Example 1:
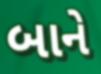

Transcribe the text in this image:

બાને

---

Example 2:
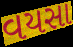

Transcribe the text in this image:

વયસા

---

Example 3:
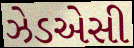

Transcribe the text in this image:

ઝેડએસી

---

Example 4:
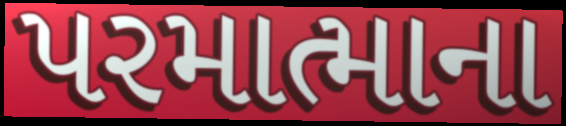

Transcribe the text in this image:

પરમાત્માના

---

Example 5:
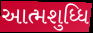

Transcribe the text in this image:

આત્મશુધ્ધિ